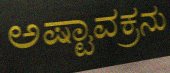
ಅಷ್ಟಾವಕ್ರನು